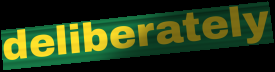
deliberately